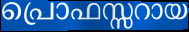
പ്രൊഫസ്സറായ